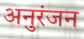
अनुरंजन